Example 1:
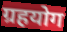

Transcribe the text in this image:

ग्रहयोग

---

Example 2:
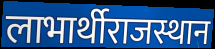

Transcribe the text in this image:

लाभार्थीराजस्थान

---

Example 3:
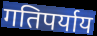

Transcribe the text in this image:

गतिपर्याय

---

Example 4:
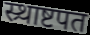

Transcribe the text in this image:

स्र्थाष्टपत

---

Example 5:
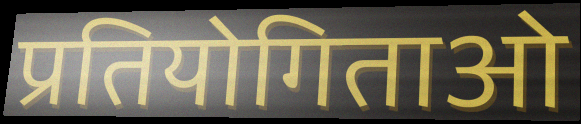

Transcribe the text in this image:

प्रतियोगिताओ